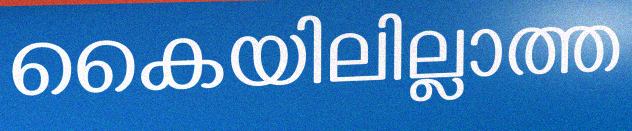
കൈയിലില്ലാത്ത